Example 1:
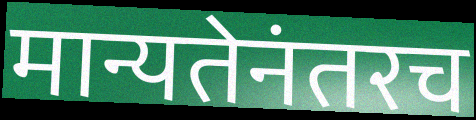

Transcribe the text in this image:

मान्यतेनंतरच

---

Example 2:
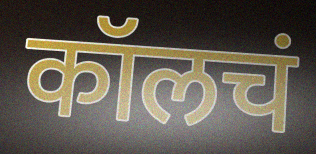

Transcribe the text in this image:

कॉलचं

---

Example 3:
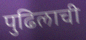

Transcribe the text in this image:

पुढिलाची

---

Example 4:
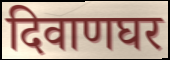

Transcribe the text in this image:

दिवाणघर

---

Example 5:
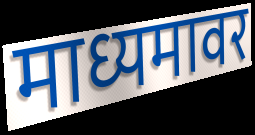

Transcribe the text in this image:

माध्यमावर